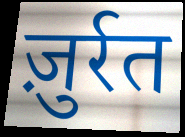
ज़ुर्रत